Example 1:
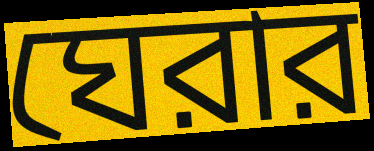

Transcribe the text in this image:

ঘেরার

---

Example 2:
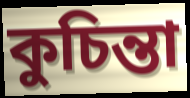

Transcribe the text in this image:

কুচিন্তা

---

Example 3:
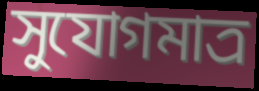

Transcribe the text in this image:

সুযোগমাত্র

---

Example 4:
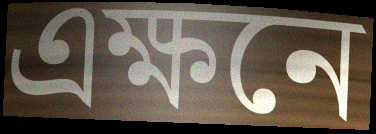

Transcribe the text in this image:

এক্ষনে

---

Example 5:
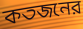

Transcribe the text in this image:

কতজনের